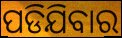
ପଡିଯିବାର